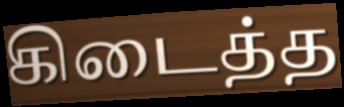
கிடைத்த